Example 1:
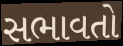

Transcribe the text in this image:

સભાવતો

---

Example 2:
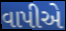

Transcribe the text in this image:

વાપીએ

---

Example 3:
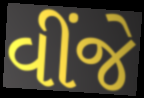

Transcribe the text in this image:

વીંજે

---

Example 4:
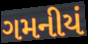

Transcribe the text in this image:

ગમનીયં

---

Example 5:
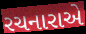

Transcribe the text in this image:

રચનારાએ